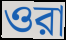
ওরা